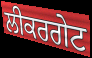
ਲੀਕਰਗੇਟ